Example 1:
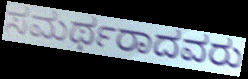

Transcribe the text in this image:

ಸಮರ್ಥರಾದವರು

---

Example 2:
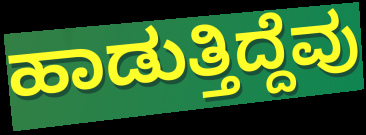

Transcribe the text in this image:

ಹಾಡುತ್ತಿದ್ದೆವು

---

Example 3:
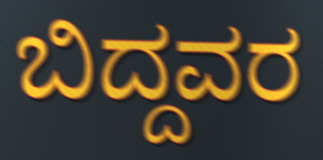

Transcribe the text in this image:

ಬಿದ್ದವರ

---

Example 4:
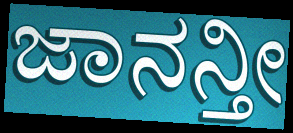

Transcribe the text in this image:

ಜಾನನ್ತೀ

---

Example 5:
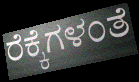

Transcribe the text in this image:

ರೆಕ್ಕೆಗಳಂತೆ